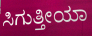
ಸಿಗುತ್ತೀಯಾ